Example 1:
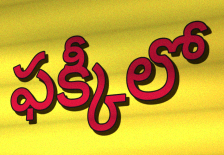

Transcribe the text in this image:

ఫక్కీలో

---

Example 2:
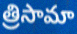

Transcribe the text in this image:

త్రిసామా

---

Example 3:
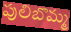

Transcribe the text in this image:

పులిబొమ్మ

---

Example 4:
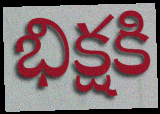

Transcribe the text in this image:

భిక్షకి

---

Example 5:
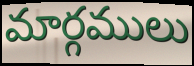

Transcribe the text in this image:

మార్గములు